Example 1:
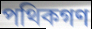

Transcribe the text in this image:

পথিকগণ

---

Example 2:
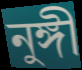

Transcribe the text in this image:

নুঙ্গী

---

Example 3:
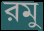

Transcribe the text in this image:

রমু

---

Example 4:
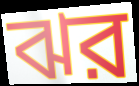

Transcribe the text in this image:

ঝর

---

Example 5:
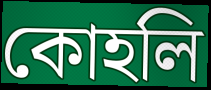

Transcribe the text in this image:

কোহলি